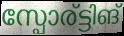
സ്പോര്ട്ടിങ്